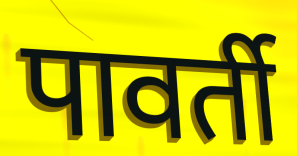
पावर्ती